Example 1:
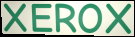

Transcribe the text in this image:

XEROX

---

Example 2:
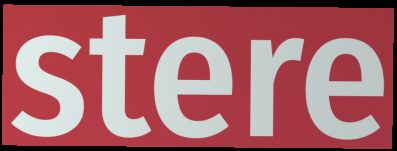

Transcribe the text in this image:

stere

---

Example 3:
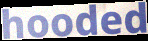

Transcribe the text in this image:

hooded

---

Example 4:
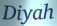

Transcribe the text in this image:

Diyah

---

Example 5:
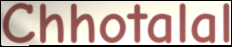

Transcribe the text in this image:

Chhotalal